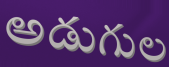
అడుగుల